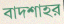
বাদশাহর